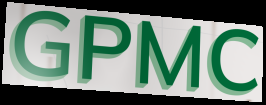
GPMC